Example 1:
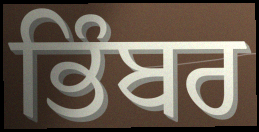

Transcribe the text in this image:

ਭਿੰਬਰ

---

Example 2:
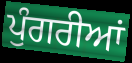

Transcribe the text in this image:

ਪੁੰਗਰੀਆਂ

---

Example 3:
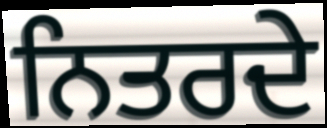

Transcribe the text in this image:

ਨਿਤਰਦੇ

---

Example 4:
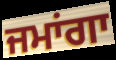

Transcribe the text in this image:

ਜਮਾਂਗਾ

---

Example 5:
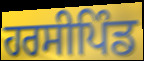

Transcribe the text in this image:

ਹਰਸੀਪਿੰਡ